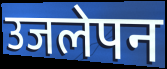
उजलेपन